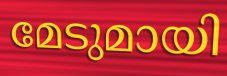
മേടുമായി